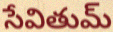
సేవితుమ్